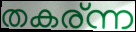
തകര്ന്ന